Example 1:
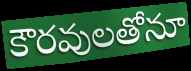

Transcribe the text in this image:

కౌరవులతోనూ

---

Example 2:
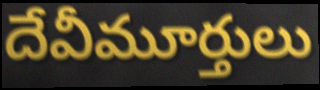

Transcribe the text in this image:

దేవీమూర్తులు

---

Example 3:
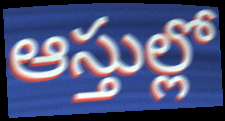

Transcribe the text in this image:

ఆస్తుల్లో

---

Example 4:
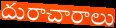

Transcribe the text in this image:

దురాచారాలు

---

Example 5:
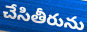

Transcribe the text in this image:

చేసితీరును